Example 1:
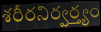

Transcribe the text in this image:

శరీరనిర్వర్త్యం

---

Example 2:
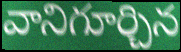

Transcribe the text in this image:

వానిగూర్చిన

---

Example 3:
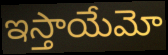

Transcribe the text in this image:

ఇస్తాయేమో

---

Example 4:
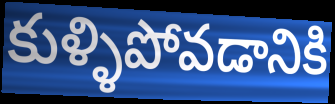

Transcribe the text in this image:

కుళ్ళిపోవడానికి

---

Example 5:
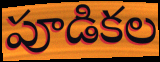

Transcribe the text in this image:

పూడికల